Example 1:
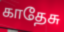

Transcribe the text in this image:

காதேசு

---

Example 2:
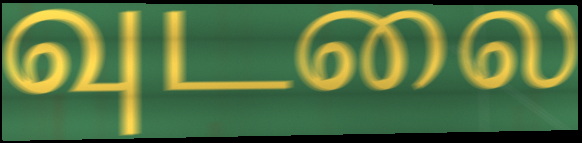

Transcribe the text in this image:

வுடலை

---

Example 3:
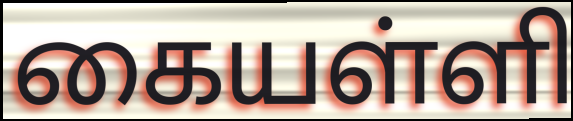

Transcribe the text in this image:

கையள்ளி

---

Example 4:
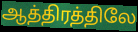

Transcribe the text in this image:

ஆத்திரத்திலே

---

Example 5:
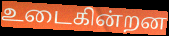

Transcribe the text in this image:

உடைகின்றன